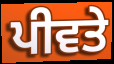
ਪੀਵਤੇ